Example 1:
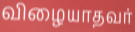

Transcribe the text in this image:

விழையாதவர்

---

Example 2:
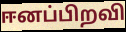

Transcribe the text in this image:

ஈனப்பிறவி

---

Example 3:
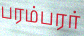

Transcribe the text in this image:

பரம்பரர்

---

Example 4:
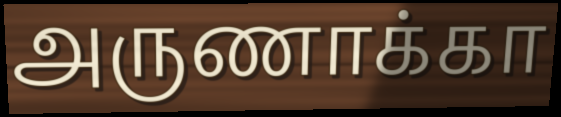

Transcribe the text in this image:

அருணாக்கா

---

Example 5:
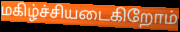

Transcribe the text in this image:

மகிழ்ச்சியடைகிறோம்